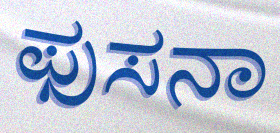
ಫುಸನಾ